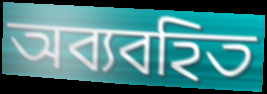
অব্যবহিত